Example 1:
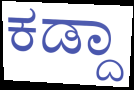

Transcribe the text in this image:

ಕಡ್ದಾ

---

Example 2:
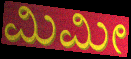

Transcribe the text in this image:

ಮಿಮೀ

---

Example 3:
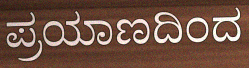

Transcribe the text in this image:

ಪ್ರಯಾಣದಿಂದ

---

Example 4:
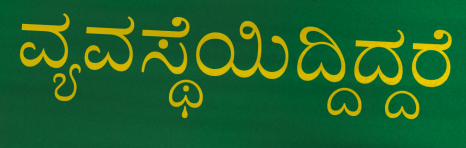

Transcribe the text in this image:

ವ್ಯವಸ್ಥೆಯಿದ್ದಿದ್ದರೆ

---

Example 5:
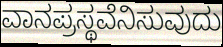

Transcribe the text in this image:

ವಾನಪ್ರಸ್ಥವೆನಿಸುವುದು